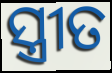
ସ୍ତ୍ରୀତ